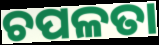
ଚପଳତା